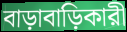
বাড়াবাড়িকারী